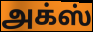
அக்ஸ்